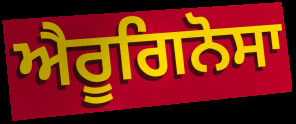
ਐਰੂਗਿਨੋਸਾ